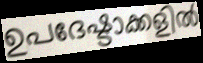
ഉപദേഷ്ടാക്കളിൽ